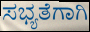
ಸಭ್ಯತೆಗಾಗಿ